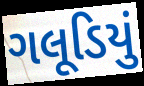
ગલૂડિયું